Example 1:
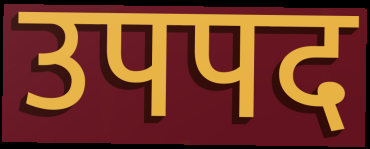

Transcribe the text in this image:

उपपद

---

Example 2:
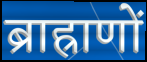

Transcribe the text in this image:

ब्राह्राणों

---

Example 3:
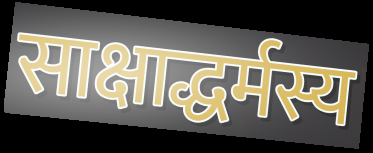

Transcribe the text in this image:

साक्षाद्धर्मस्य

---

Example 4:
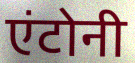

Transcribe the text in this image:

एंटोनी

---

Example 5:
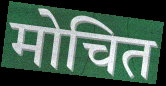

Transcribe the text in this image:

मोचित